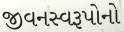
જીવનસ્વરૂપોનો